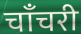
चाँचरी